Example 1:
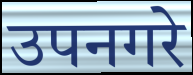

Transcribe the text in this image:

उपनगरे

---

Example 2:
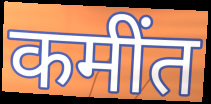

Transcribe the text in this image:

कमींत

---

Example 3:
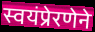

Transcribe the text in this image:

स्वयंप्रेरणेने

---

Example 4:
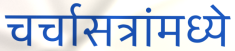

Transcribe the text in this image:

चर्चासत्रांमध्ये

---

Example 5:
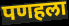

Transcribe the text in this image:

पणहला